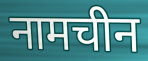
नामचीन